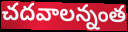
చదవాలన్నంత